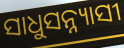
ସାଧୁସନ୍ନ୍ୟାସୀ